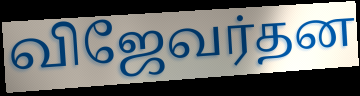
விஜேவர்தன